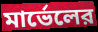
মার্ভেলের